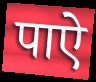
पाऐ